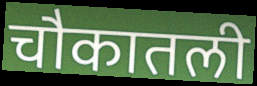
चौकातली